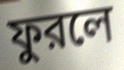
ফুরলে